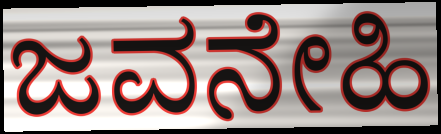
ಜವನೇಹಿ